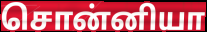
சொன்னியா